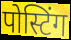
पोस्टिंग